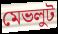
মেভলুট